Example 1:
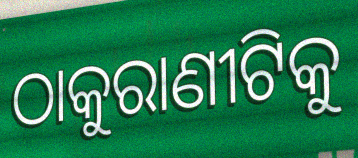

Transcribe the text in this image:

ଠାକୁରାଣୀଟିକୁ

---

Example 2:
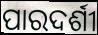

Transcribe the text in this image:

ପାରଦର୍ଶୀ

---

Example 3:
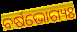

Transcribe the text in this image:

ବର୍ଷଭୋଗ୍ୟଃ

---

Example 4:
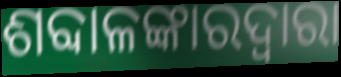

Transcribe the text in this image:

ଶବ୍ଦାଳଙ୍କାରଦ୍ୱାରା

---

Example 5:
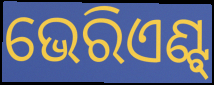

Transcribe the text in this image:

ଭେରିଏଣ୍ଟ୍